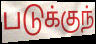
படுக்குந்